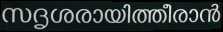
സദൃശരായിത്തീരാൻ